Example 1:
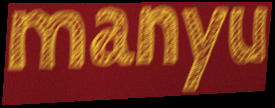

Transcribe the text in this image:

manyu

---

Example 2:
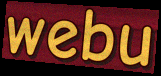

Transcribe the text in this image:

webu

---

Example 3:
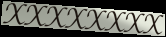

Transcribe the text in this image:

XXXXXXXX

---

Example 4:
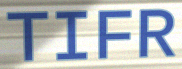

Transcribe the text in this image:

TIFR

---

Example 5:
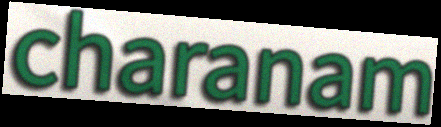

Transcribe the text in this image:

charanam